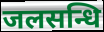
जलसन्धि